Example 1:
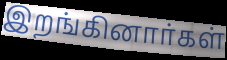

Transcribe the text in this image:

இறங்கினார்கள்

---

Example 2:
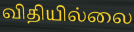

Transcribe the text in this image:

விதியில்லை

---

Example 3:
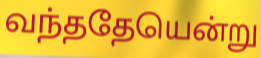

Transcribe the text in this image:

வந்ததேயென்று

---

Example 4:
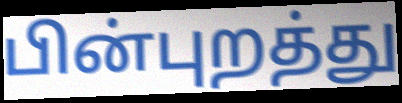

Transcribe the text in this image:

பின்புறத்து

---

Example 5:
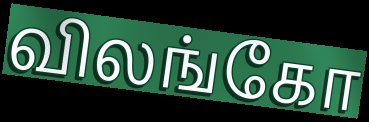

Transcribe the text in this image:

விலங்கோ